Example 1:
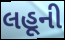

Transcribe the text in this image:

લહૂની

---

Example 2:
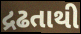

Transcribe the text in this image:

દ્રઢતાથી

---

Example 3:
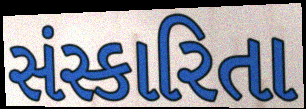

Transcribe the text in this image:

સંસ્કારિતા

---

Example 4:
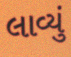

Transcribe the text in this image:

લાવ્યું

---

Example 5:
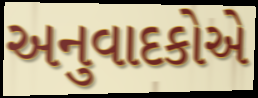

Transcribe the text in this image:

અનુવાદકોએ